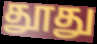
தூது